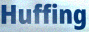
Huffing